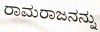
ರಾಮರಾಜನನ್ನು